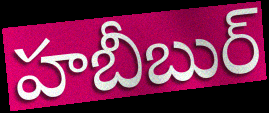
హబీబుర్